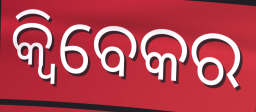
କ୍ୱିବେକର